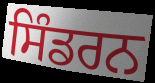
ਸਿੰਡਰਨ